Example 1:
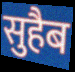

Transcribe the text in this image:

सुहैब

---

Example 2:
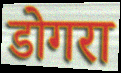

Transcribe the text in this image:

डोगरा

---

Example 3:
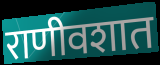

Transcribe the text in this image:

राणीवशात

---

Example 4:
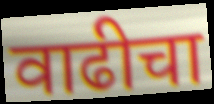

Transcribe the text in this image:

वाढीचा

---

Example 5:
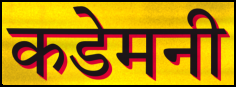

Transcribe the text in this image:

कडेमनी